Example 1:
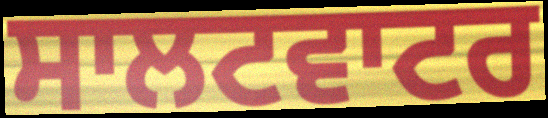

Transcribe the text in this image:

ਸਾਲਟਵਾਟਰ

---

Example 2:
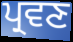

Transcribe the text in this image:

ਪ੍ਰਵਣ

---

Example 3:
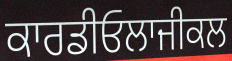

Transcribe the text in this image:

ਕਾਰਡੀਓਲਾਜੀਕਲ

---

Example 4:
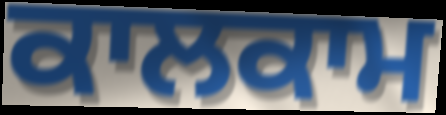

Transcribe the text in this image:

ਕਾਲਕਾਮ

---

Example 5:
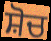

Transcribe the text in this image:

ਸ਼ੋਚ